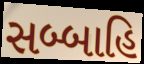
સબ્બાહિ